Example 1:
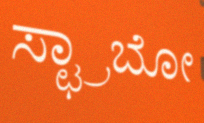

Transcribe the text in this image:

ಸ್ಟ್ರಾಬೋ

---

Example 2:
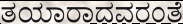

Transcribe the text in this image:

ತಯಾರಾದವರಂತೆ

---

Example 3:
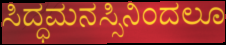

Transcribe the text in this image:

ಸಿದ್ಧಮನಸ್ಸಿನಿಂದಲೂ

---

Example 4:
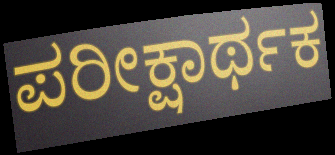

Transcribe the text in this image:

ಪರೀಕ್ಷಾರ್ಥಕ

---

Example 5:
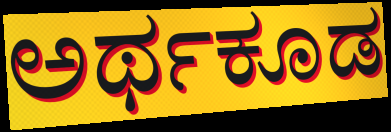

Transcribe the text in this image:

ಅರ್ಥಕೂಡ